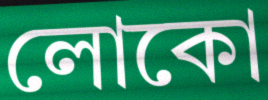
লোকো